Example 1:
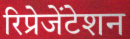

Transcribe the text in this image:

रिप्रेजेंटेशन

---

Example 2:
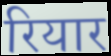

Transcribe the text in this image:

रियार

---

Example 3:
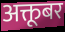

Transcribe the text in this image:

अक्तूबर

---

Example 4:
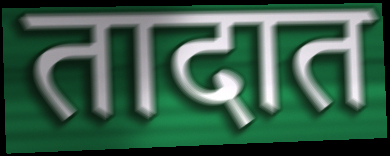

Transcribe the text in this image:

तादात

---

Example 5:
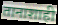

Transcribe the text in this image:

तानाशाही